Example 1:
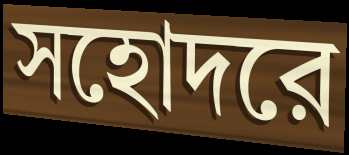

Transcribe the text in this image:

সহোদরে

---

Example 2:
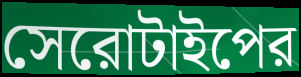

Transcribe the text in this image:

সেরোটাইপের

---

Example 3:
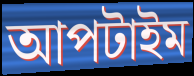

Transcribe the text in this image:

আপটাইম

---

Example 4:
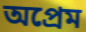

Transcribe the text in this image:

অপ্রেম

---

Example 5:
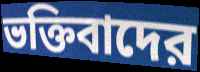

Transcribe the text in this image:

ভক্তিবাদের